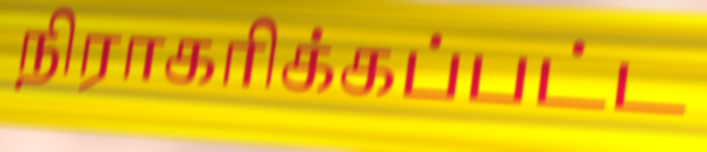
நிராகரிக்கப்பட்ட